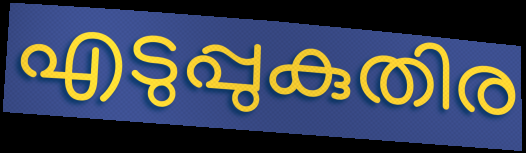
എടുപ്പുകുതിര